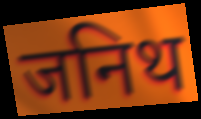
जनिथ